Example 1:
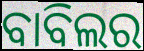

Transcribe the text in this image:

ବାବିଲର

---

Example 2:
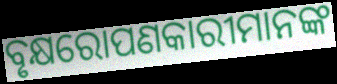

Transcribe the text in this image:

ବୃକ୍ଷରୋପଣକାରୀମାନଙ୍କ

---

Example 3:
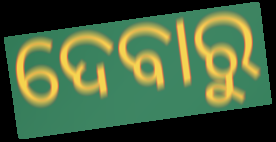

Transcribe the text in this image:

ଦେବାରୁ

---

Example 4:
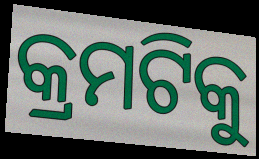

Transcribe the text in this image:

କ୍ରମଟିକୁ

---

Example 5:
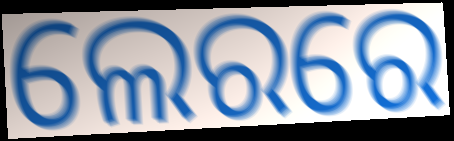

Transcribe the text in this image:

ଲେରରେ